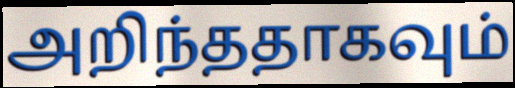
அறிந்ததாகவும்